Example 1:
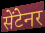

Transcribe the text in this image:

सेंटेनर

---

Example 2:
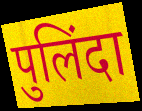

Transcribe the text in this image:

पुलिंदा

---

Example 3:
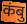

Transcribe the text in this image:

कंबु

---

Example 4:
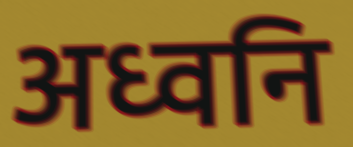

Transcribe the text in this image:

अध्वनि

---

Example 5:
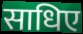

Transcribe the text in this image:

साधिए